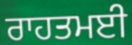
ਰਾਹਤਮਈ